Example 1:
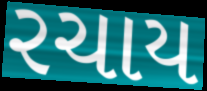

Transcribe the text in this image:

રચાય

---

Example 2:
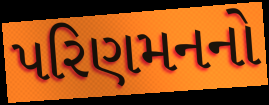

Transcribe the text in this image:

પરિણમનનો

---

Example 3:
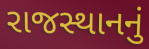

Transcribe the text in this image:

રાજસ્થાનનું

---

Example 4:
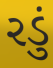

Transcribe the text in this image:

રડું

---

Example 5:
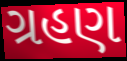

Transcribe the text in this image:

ગ્રહણ